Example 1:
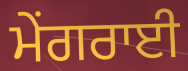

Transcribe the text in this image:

ਮੇਂਗਰਾਈ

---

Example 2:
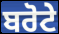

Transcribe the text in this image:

ਬਰੋਟੇ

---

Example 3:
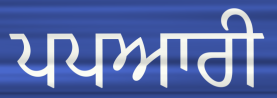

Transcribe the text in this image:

ਪਪਆਰੀ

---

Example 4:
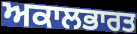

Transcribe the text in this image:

ਅਕਾਲਭਾਰਤ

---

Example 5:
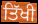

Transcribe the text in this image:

ਤਿੱਖੀ